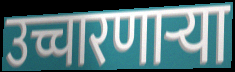
उच्चारणाऱ्या